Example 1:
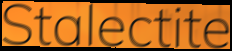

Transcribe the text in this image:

Stalectite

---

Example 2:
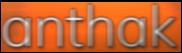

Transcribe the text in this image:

anthak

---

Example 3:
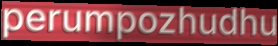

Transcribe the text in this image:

perumpozhudhu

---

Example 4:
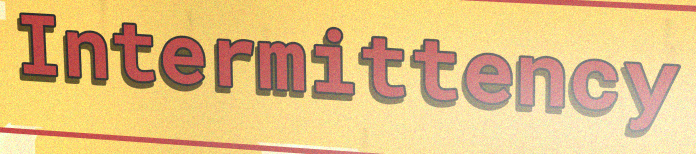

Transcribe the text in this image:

Intermittency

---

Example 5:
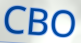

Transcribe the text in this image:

CBO